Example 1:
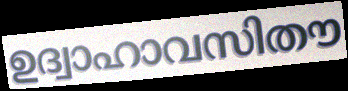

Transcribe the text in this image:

ഉദ്വാഹാവസിതൗ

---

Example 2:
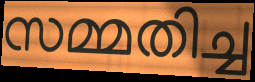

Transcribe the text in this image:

സമ്മതിച്ച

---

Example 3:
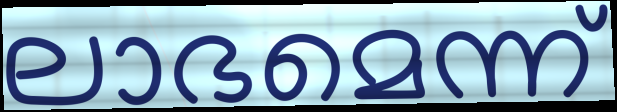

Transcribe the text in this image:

ലാഭമെന്ന്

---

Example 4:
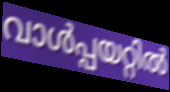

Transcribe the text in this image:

വാൾപ്പയറ്റിൽ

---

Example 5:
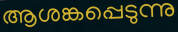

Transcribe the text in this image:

ആശങ്കപ്പെടുന്നു